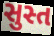
સુસ્ત